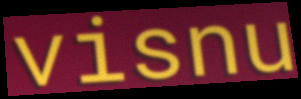
visnu